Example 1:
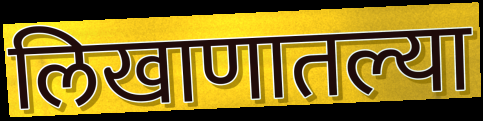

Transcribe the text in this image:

लिखाणातल्या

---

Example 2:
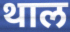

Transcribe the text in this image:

थाल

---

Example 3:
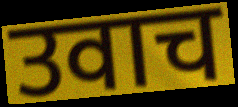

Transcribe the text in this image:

उवाच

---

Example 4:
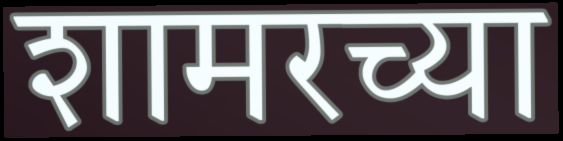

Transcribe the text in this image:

शामरच्या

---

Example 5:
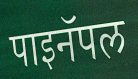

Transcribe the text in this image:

पाइनॅपल